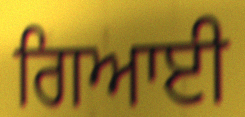
ਗਿਆਈ